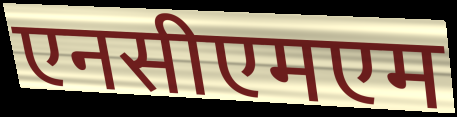
एनसीएमएम